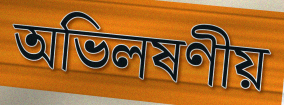
অভিলষণীয়